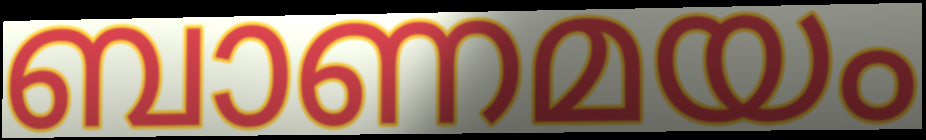
ബാണമയം